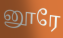
னூரே